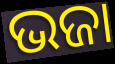
ଭଜା